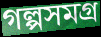
গল্পসমগ্র